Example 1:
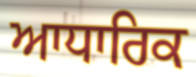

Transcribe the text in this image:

ਆਧਾਰਿਕ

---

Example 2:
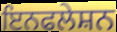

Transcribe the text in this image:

ਇਨਫਲੇਸ਼ਨ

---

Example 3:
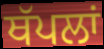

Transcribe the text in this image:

ਥੱਪਲਾਂ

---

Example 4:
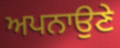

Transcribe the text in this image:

ਅਪਨਾਉਣੇ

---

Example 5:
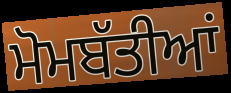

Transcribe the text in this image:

ਮੋਮਬੱਤੀਆਂ